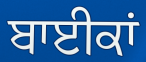
ਬਾਈਕਾਂ